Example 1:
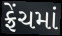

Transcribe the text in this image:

ફ્રેંચમાં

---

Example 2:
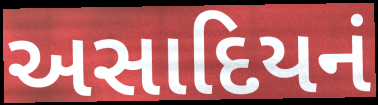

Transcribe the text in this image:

અસાદિયનં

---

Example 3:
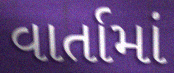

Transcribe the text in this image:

વાર્તામાં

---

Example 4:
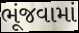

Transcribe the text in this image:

ભૂંજવામાં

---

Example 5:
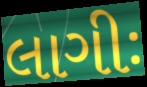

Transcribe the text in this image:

લાગીઃ